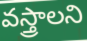
వస్త్రాలని